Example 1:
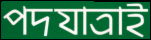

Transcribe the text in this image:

পদযাত্রাই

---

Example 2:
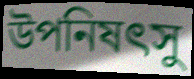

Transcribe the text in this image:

উপনিষৎসু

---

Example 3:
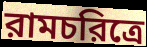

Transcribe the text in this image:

রামচরিত্রে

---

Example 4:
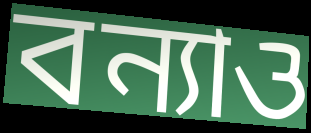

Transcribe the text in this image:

বন্যাও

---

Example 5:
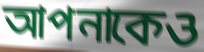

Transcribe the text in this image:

আপনাকেও